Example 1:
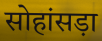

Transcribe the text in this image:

सोहांसड़ा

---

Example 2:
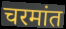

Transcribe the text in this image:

चरमांत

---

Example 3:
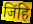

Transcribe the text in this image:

जिंहि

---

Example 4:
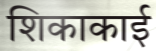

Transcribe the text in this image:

शिकाकाई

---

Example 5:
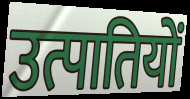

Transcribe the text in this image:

उत्पातियों